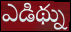
ఎడిథ్ను